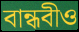
বান্ধবীও